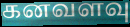
கனவளவு